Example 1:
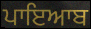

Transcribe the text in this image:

ਪਾਇਆਬ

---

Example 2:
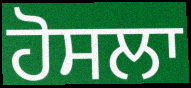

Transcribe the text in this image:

ਹੋਸਲਾ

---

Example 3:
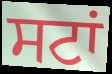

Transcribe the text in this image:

ਸਟਾਂ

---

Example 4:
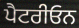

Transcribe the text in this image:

ਪੈਟਰੀਓਨ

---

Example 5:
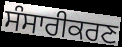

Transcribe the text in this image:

ਸੰਸਾਰੀਕਰਣ